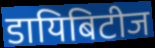
डायिबिटीज